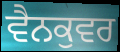
ਵੈਨਕੁਵਰ